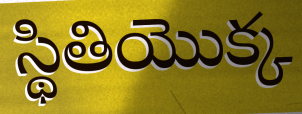
స్థితియొక్క